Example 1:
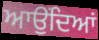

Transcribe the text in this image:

ਆਉਂਦਿਆਂ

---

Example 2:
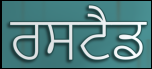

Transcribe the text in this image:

ਰਸਟੈਡ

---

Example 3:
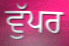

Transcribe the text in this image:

ਵੁੱਪਰ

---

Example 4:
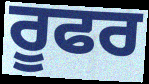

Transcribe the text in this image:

ਰੂਫਰ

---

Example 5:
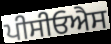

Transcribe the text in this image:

ਪੀਸੀਓਐਸ